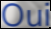
Oui